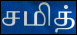
சமித்